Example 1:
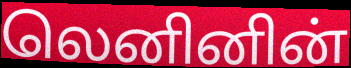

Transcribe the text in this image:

லெனினின்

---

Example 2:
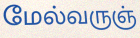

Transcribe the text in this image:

மேல்வருஞ்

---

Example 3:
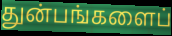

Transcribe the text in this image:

துன்பங்களைப்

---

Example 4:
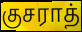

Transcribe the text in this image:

குசராத்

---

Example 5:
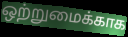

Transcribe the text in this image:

ஒற்றுமைக்காக